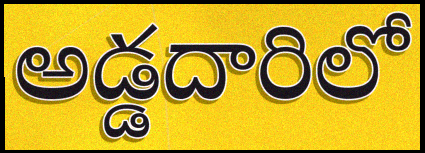
అడ్డదారిలో